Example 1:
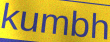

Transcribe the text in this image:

kumbh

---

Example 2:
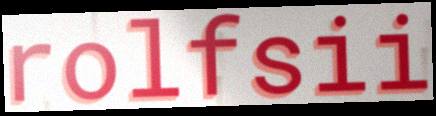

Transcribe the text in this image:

rolfsii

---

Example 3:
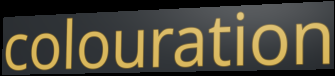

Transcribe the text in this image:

colouration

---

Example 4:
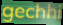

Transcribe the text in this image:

gechhi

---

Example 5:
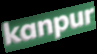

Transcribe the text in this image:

kanpur